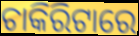
ଚାକିରିଟାରେ